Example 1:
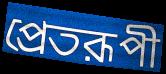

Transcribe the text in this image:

প্রেতরূপী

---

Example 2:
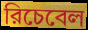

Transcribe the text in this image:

রিচেবেল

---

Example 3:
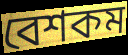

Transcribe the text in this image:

বেশকম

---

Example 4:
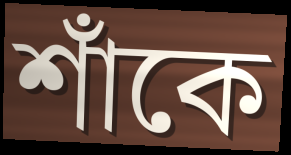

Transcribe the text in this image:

শাঁকে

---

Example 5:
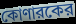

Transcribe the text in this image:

কোণারকের